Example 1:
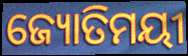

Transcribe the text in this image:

ଜ୍ୟୋତିମୟୀ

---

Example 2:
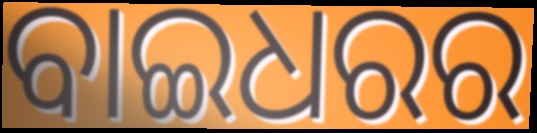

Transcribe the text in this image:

ବାଇଧରର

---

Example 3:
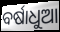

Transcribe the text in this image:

ବର୍ଷାଧୁଆ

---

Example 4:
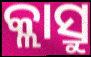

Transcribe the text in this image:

କ୍ଲାସ୍ରୁ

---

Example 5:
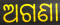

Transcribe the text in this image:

ଅଗଣା